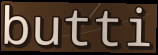
butti